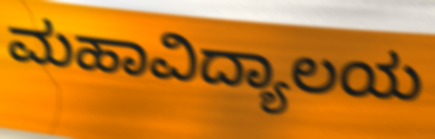
ಮಹಾವಿದ್ಯಾಲಯ